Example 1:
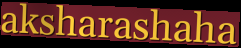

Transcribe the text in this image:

aksharashaha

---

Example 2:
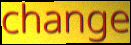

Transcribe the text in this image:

change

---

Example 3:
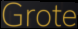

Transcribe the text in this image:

Grote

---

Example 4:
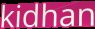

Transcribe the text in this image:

kidhan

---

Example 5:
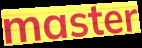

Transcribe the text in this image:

master